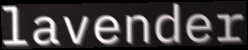
lavender